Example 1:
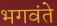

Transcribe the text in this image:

भगवंते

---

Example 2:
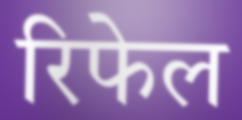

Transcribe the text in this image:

रिफेल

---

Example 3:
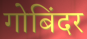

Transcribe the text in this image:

गोबिंदर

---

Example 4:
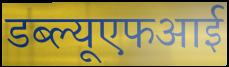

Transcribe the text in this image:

डब्ल्यूएफआई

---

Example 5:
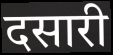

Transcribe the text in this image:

दसारी